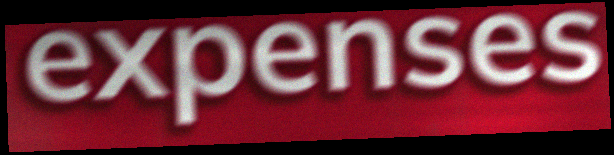
expenses